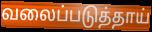
வலைப்படுத்தாய்